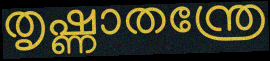
തൃഷ്ണാതന്ത്രേ